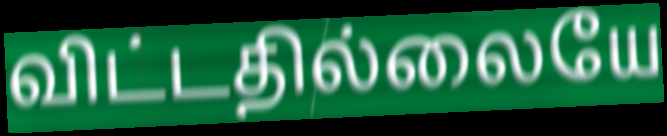
விட்டதில்லையே